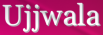
Ujjwala